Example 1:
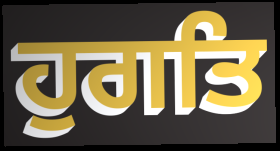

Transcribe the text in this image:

ਹੁਗਤਿ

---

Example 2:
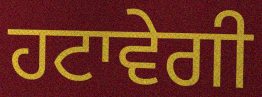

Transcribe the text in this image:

ਹਟਾਵੇਗੀ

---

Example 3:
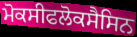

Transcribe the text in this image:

ਮੋਕਸੀਫਲੋਕਸੈਸਿਨ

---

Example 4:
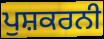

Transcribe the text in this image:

ਪੁਸ਼ਕਰਨੀ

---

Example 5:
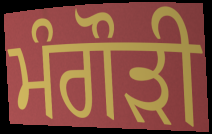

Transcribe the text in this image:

ਮੰਗੌੜੀ